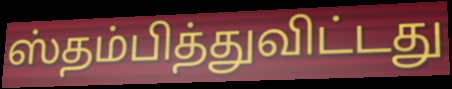
ஸ்தம்பித்துவிட்டது